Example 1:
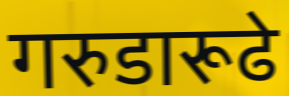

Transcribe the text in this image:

गरुडारूढे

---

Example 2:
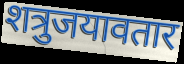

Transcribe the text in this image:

शत्रुजयावतार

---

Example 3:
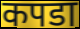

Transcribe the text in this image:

कपडा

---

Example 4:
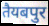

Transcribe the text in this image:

तैयबपुर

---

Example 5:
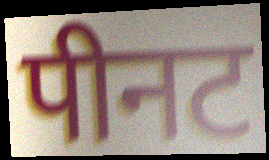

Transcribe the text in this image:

पीनट